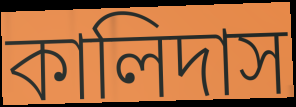
কালিদাস